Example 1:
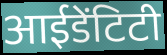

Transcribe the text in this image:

आईडेंटिटी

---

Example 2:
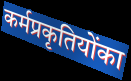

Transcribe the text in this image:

कर्मप्रकृतियोंका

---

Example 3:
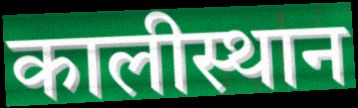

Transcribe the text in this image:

कालीस्थान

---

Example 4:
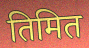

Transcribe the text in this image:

तिमित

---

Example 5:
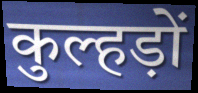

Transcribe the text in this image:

कुल्हड़ों